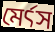
মের্ৎস